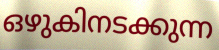
ഒഴുകിനടക്കുന്ന